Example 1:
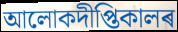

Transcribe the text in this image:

আলোকদীপ্তিকালৰ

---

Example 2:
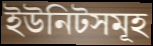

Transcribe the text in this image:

ইউনিটসমূহ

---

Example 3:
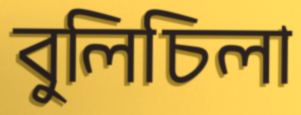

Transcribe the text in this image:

বুলিচিলা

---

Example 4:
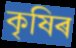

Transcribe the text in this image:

কৃষিৰ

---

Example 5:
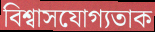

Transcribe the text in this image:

বিশ্বাসযোগ্যতাক